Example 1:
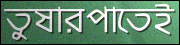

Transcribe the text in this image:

তুষারপাতেই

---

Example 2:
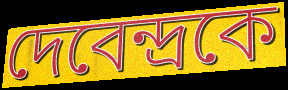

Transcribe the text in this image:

দেবেন্দ্রকে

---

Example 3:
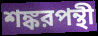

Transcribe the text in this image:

শঙ্করপন্থী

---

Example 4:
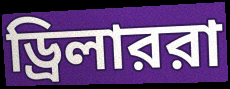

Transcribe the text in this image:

ড্রিলাররা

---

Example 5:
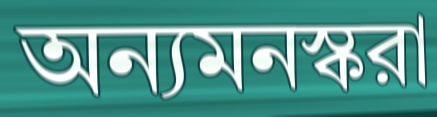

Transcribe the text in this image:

অন্যমনস্করা